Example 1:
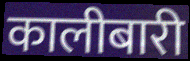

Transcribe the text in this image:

कालीबारी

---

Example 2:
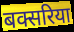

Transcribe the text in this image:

बक्सरिया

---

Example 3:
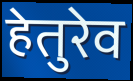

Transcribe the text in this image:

हेतुरेव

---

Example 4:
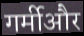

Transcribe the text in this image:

गर्मीऔर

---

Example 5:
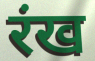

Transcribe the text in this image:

रंख